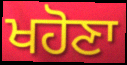
ਖਹੋਣਾ